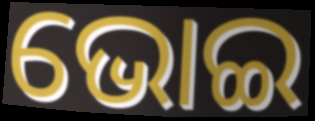
ଭୋଇ